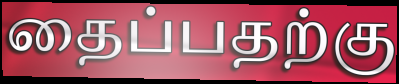
தைப்பதற்கு